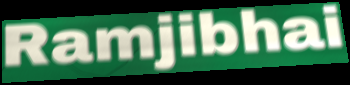
Ramjibhai